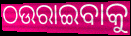
ଠଉରାଇବାକୁ